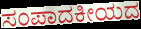
ಸಂಪಾದಕೀಯದ